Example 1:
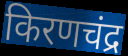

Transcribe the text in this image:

किरणचंद्र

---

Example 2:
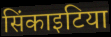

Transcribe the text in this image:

सिंकाइटिया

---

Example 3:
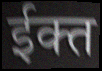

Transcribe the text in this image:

ईक्त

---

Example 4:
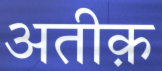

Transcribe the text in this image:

अतीक़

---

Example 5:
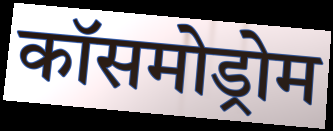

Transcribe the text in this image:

कॉसमोड्रोम